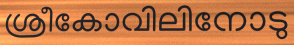
ശ്രീകോവിലിനോടു